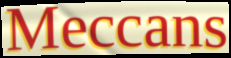
Meccans